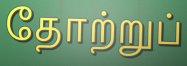
தோற்றுப்